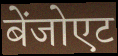
बेंजोएट